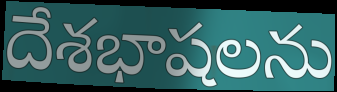
దేశభాషలను